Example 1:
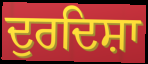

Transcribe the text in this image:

ਦੁਰਦਿਸ਼ਾ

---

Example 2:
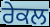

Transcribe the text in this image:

ਰੇਕਲ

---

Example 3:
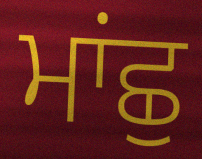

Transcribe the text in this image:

ਮਾਂਛੁ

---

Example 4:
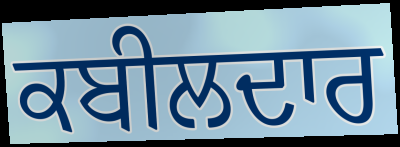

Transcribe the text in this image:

ਕਬੀਲਦਾਰ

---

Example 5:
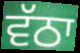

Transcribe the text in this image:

ਵੱਠਾ